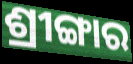
ଶ୍ରୀଙ୍ଗାର